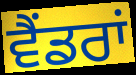
ਵੈਂਡਰਾਂ